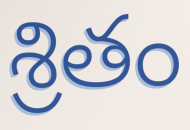
శ్రితం